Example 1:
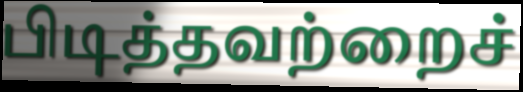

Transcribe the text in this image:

பிடித்தவற்றைச்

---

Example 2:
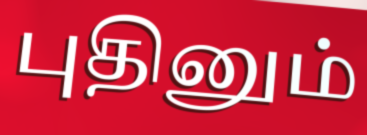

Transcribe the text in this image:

புதினும்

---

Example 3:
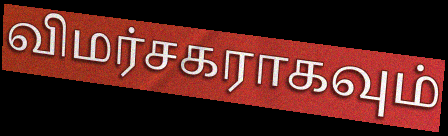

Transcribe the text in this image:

விமர்சகராகவும்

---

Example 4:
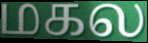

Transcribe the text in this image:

மகல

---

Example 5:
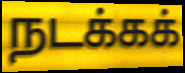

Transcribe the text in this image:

நடக்கக்